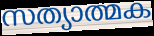
സത്യാത്മക